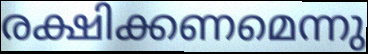
രക്ഷിക്കണമെന്നു